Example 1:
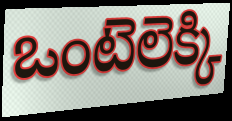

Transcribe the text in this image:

ఒంటెలెక్కి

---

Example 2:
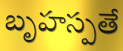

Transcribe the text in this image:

బృహస్పతే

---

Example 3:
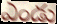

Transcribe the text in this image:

ఎండు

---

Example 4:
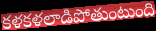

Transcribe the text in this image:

కళకళలాడిపోతుంటుంది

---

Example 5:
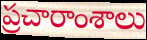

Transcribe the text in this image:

ప్రచారాంశాలు